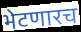
भेटणारच